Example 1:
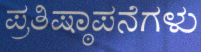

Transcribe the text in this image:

ಪ್ರತಿಷ್ಠಾಪನೆಗಳು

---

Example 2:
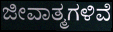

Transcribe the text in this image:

ಜೀವಾತ್ಮಗಳಿವೆ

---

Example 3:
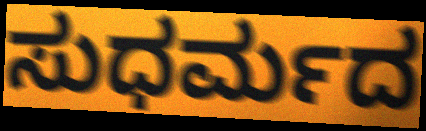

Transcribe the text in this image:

ಸುಧರ್ಮದ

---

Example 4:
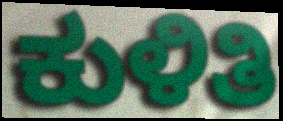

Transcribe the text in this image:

ಕುಳಿತಿ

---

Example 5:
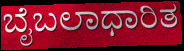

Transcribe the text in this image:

ಬೈಬಲಾಧಾರಿತ